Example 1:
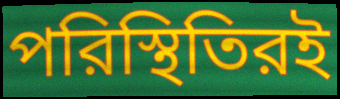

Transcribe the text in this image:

পরিস্থিতিরই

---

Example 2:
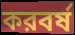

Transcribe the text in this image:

করবর্ষ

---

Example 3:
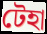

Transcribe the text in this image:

টেহা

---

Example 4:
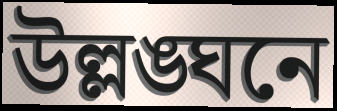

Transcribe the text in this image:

উল্লঙ্ঘনে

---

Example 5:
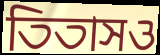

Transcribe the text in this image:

তিতাসও